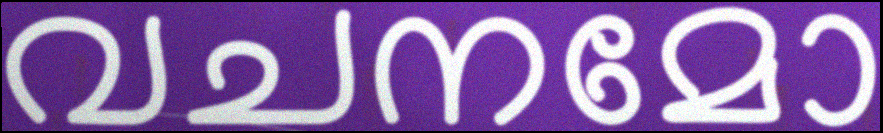
വചനമോ